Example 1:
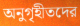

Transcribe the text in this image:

অনুগৃহীতদের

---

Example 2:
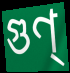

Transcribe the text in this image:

গুণ্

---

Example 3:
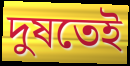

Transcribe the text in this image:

দুষতেই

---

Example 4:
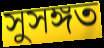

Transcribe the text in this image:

সুসঙ্গত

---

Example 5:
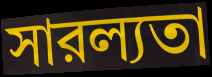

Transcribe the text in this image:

সারল্যতা